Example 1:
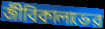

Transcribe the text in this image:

জীবিকালাভের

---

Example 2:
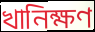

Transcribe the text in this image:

খানিক্ষণ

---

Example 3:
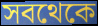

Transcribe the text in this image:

সবথেকে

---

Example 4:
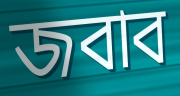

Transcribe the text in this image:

জবাব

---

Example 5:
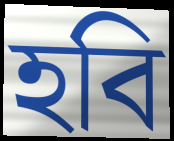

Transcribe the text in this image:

হবি